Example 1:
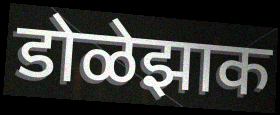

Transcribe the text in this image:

डोळेझाक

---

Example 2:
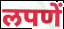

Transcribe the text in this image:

लपणें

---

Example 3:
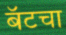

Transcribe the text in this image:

बॅटचा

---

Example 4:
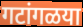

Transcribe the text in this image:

गटांगळया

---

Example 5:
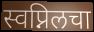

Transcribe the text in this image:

स्वप्निलचा